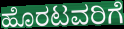
ಹೊರಟವರಿಗೆ